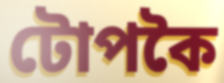
টোপকৈ